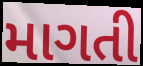
માગતી